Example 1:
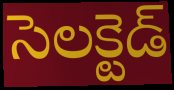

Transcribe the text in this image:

సెలక్టెడ్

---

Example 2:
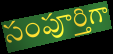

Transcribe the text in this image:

సంపూర్తిగా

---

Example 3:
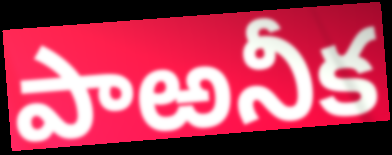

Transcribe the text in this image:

పాఱనీక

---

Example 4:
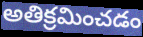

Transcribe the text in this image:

అతిక్రమించడం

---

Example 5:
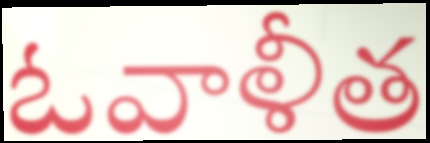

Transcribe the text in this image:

ఓవాళీత